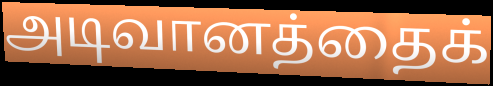
அடிவானத்தைக்